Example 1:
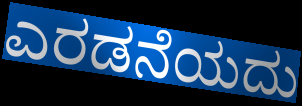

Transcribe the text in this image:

ಎರಡನೆಯದು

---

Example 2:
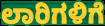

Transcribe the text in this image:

ಲಾರಿಗಳಿಗೆ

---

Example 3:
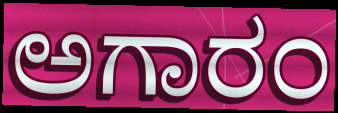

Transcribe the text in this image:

ಅಗಾರಂ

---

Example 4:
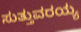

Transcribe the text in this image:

ಸುತ್ತುವರಯ್ಯ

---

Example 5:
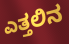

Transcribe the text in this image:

ಎತ್ತಲಿನ